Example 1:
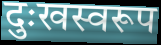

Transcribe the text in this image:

दुःखस्वरूप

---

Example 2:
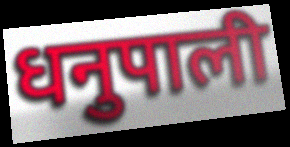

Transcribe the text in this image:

धनुपाली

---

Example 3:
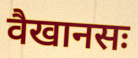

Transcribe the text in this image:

वैखानसः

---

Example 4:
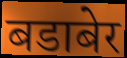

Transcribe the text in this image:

बडाबेर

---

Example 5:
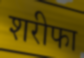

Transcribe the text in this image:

शरीफा